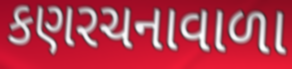
કણરચનાવાળા